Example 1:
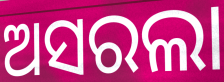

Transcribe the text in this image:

ଅସରଲା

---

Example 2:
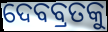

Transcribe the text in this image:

ଦେବବ୍ରତକୁ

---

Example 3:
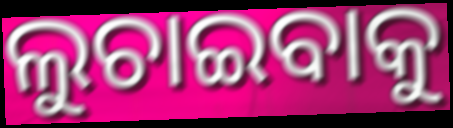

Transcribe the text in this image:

ଲୁଚାଇବାକୁ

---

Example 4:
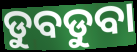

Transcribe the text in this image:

ଡୁବଡୁବା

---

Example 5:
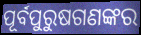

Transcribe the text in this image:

ପୂର୍ବପୁରୁଷଗଣଙ୍କର